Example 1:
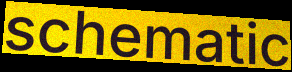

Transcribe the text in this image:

schematic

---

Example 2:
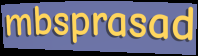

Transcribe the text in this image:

mbsprasad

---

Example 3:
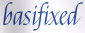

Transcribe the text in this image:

basifixed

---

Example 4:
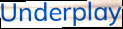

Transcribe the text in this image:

Underplay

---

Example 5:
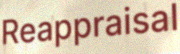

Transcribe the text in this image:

Reappraisal